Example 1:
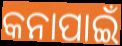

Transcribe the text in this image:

କନାପାଇଁ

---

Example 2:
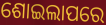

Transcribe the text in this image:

ଶୋଇଲାପରେ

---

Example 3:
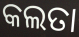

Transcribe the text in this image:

କଲତା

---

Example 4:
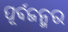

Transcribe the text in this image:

ପୂର୍ବଜନ୍ମର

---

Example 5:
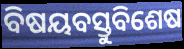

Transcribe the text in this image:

ବିଷୟବସ୍ତୁବିଶେଷ